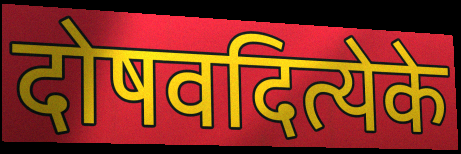
दोषवदित्येके